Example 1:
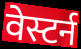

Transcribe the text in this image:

वेस्‍टर्न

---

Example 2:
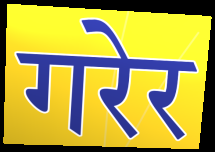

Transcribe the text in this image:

गरेर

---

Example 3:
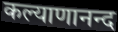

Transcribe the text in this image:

कल्याणानन्द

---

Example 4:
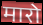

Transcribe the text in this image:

मारो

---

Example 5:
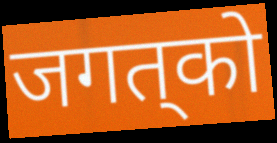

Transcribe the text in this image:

जगत्‌को